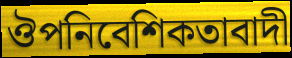
ঔপনিবেশিকতাবাদী